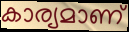
കാര്യമാണ്